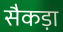
सैकड़ा